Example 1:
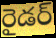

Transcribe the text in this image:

రైడర్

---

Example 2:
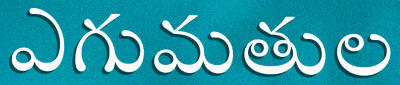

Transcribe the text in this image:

ఎగుమతుల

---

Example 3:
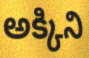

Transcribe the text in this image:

అక్కిని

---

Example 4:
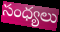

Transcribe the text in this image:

సంధ్యలు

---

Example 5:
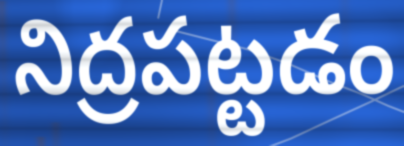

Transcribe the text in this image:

నిద్రపట్టడం